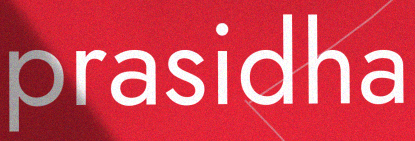
prasidha